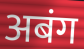
अबंग